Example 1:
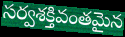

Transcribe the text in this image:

సర్వశక్తివంతమైన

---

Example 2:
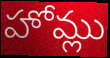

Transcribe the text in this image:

హోమ్లు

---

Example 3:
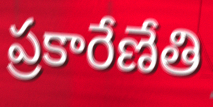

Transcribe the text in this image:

ప్రకారేణేతి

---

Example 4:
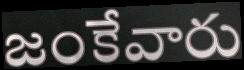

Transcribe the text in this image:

జంకేవారు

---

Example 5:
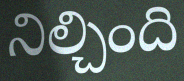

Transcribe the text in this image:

నిల్చింది